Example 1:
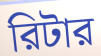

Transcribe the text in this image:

রিটার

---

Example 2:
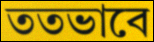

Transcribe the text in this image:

ততভাবে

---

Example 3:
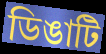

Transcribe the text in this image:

ডিঙাটি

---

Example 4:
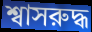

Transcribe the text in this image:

শ্বাসরুদ্ধ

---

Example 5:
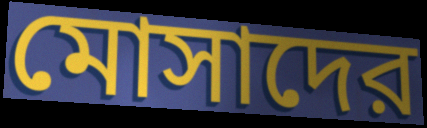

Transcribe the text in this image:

মোসাদের